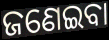
ଜଣେଇବା